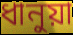
ধানুয়া